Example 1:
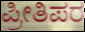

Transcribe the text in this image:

ಪ್ರೀತಿಪರ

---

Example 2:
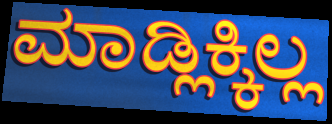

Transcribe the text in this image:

ಮಾಡ್ಲಿಕ್ಕಿಲ್ಲ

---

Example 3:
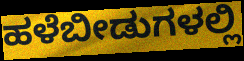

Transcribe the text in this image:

ಹಳೆಬೀಡುಗಳಲ್ಲಿ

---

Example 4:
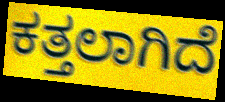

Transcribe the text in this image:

ಕತ್ತಲಾಗಿದೆ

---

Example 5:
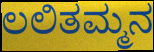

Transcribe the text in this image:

ಲಲಿತಮ್ಮನ